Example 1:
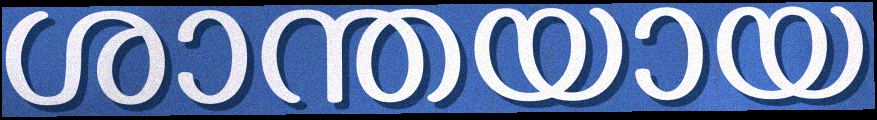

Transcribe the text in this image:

ശാന്തയായ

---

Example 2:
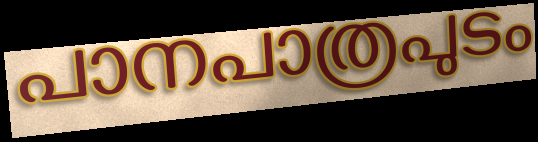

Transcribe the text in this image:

പാനപാത്രപുടം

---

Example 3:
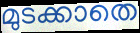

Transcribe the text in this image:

മുടക്കാതെ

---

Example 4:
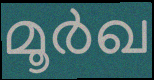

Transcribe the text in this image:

മൂർഖ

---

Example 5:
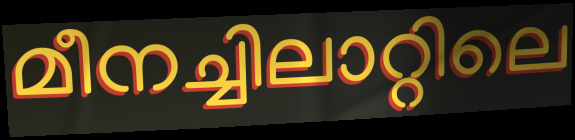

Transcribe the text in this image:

മീനച്ചിലാറ്റിലെ